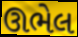
ઊભેલ